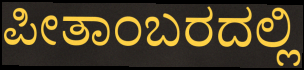
ಪೀತಾಂಬರದಲ್ಲಿ